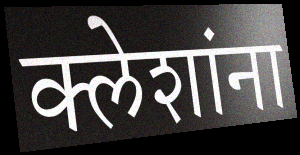
क्लेशांना